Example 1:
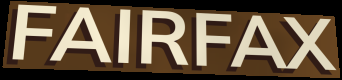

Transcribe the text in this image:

FAIRFAX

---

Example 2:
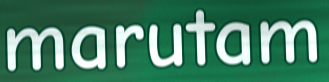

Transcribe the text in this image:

marutam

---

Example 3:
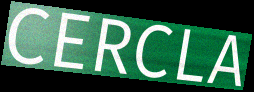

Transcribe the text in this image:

CERCLA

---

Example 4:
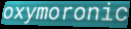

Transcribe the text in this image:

oxymoronic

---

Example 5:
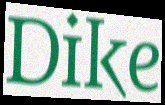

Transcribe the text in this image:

Dike